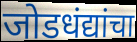
जोडधंद्यांचा